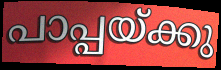
പാപ്പയ്ക്കു